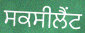
ਸਕਸੀਲੈਂਟ